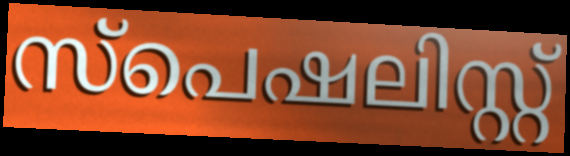
സ്പെഷലിസ്റ്റ്